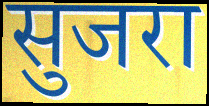
सुजरा